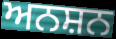
ਅਨਸ਼ਨ